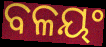
ବଳୟଂ